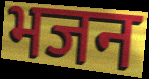
भजन